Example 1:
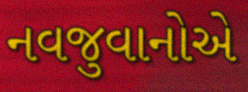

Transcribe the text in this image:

નવજુવાનોએ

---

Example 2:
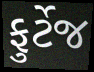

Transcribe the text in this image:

ફુર્ટેજ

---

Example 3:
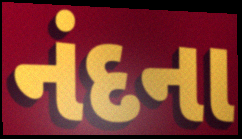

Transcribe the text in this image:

નંદના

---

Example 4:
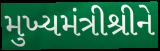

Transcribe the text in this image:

મુખ્યમંત્રીશ્રીને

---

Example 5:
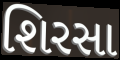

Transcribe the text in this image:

શિરસા